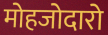
मोहजोदारो